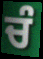
ਚੰ